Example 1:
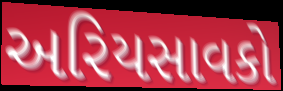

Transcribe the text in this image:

અરિયસાવકો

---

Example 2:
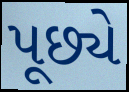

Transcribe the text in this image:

પૂછ્યે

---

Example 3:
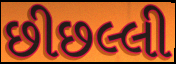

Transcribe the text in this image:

છીછલ્લી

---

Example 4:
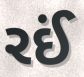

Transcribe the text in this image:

રઈં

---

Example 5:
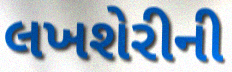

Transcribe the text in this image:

લખશેરીની